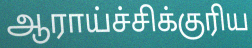
ஆராய்ச்சிக்குரிய